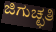
ಜಿಗುಚ್ಛತಿ